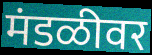
मंडळीवर